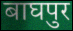
बाघपुर